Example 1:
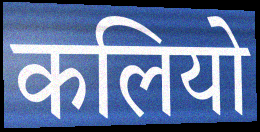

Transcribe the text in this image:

कलियो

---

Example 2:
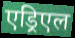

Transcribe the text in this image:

एड्रिएल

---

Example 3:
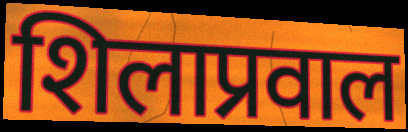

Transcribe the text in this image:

शिलाप्रवाल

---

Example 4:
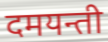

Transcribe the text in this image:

दमयन्ती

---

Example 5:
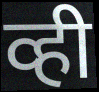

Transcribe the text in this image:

व्‍ही